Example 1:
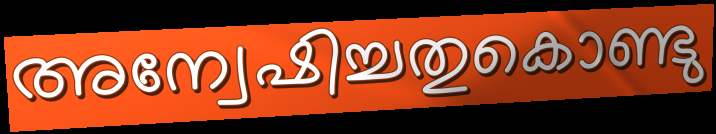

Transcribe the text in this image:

അന്വേഷിച്ചതുകൊണ്ടു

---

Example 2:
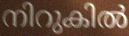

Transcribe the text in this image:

നിറുകിൽ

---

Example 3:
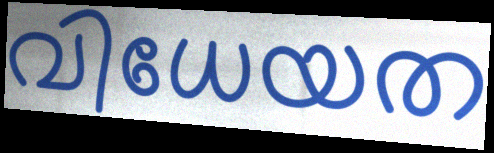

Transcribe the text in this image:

വിധേയത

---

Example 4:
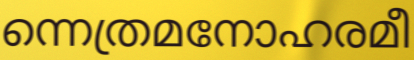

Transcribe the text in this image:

ന്നെത്രമനോഹരമീ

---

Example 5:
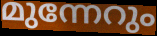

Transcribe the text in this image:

മുന്നേറും